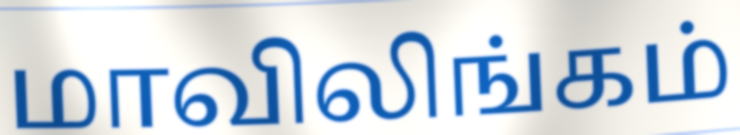
மாவிலிங்கம்